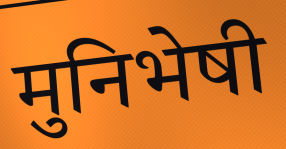
मुनिभेषी